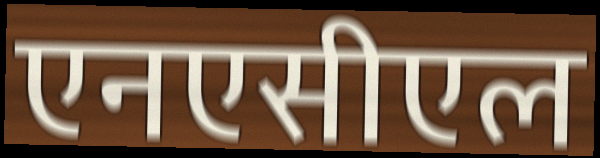
एनएसीएल